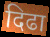
दिढा